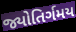
જ્યોતિર્ગમય